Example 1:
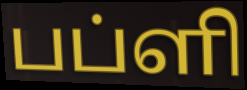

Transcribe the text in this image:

பப்ளி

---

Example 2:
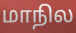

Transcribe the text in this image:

மாநில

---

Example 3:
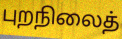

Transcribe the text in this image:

புறநிலைத்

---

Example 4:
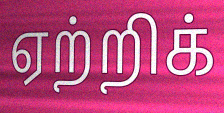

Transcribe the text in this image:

ஏற்றிக்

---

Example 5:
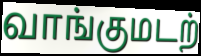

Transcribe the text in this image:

வாங்குமடற்